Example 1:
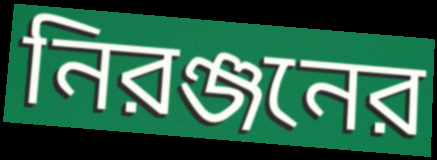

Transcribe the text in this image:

নিরঞ্জনের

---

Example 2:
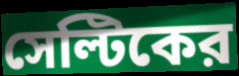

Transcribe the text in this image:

সেল্টিকের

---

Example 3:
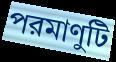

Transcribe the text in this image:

পরমাণুটি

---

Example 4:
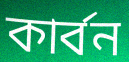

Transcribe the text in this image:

কার্বন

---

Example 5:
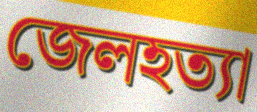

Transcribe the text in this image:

জেলহত্যা